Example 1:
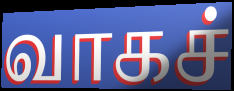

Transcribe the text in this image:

வாகச்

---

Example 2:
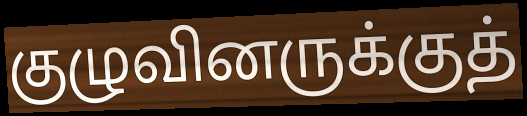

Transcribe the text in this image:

குழுவினருக்குத்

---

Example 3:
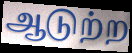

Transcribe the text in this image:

ஆடுற்ற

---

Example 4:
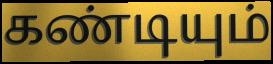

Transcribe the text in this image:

கண்டியும்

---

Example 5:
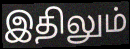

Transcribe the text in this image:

இதிலும்